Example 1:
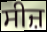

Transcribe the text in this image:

ਸੀਜ਼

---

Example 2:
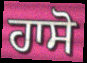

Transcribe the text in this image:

ਹਾਸੋ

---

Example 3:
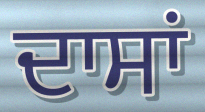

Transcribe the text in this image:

ਦਾਸਾਂ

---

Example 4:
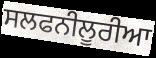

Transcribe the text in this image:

ਸਲਫਨੀਲੂਰੀਆ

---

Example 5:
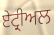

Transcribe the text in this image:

ਏਟ੍ਰੀਅਲ